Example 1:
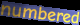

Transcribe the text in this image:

numbered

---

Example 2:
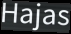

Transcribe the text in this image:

Hajas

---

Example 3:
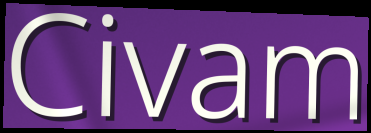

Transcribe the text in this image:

Civam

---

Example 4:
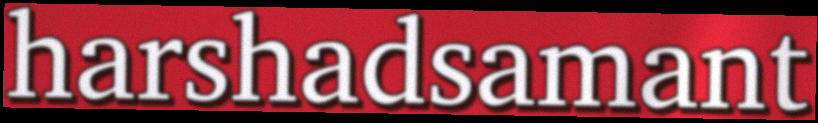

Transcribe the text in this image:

harshadsamant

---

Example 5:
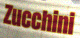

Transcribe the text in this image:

Zucchini